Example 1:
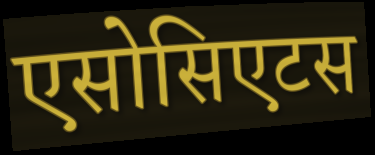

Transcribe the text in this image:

एसोसिएटस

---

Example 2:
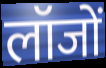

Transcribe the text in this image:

लॉजों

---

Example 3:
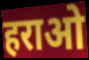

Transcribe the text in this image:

हराओ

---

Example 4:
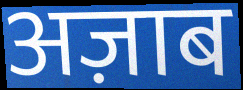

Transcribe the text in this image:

अज़ाब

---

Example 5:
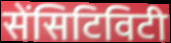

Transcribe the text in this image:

सेंसिटिविटी